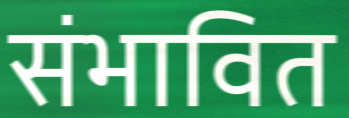
संभावित